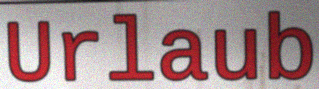
Urlaub